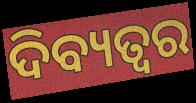
ଦିବ୍ୟତ୍ବର